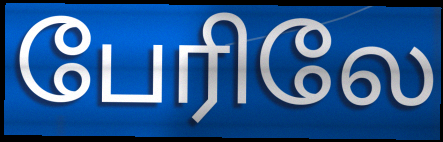
பேரிலே